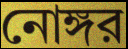
নোঙ্গর